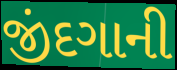
જીંદગાની